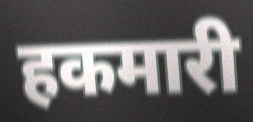
हकमारी